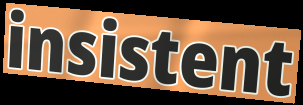
insistent